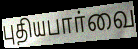
புதியபார்வை